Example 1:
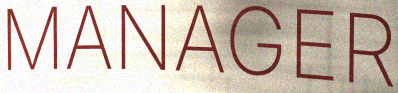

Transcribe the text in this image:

MANAGER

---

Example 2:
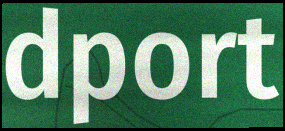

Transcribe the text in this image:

dport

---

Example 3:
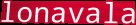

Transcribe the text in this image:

lonavala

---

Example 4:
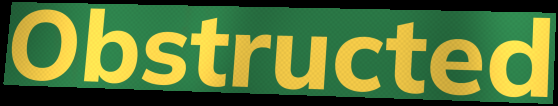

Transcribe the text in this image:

Obstructed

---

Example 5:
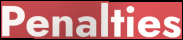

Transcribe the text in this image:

Penalties